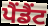
ਪੈਂਡੈਂਟ